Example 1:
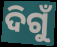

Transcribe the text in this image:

ଦିଗୁଁ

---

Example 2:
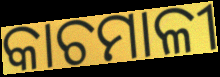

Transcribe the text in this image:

କାଚମାଳୀ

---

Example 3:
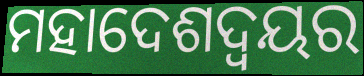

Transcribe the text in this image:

ମହାଦେଶଦ୍ଵୟର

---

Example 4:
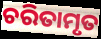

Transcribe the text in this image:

ଚରିତାମୃତ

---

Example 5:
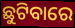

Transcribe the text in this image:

ଛୁଟିବାରେ